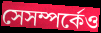
সেসম্পর্কেও